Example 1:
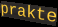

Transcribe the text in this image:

prakte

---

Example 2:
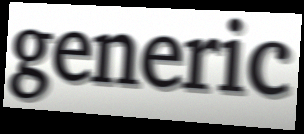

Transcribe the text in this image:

generic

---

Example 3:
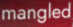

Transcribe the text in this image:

mangled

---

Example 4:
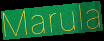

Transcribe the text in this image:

Marula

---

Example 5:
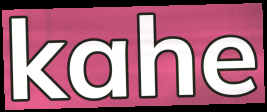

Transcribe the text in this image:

kahe